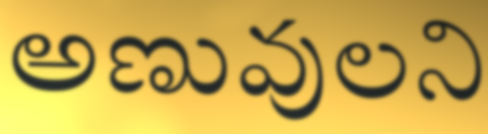
అణువులని